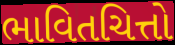
ભાવિતચિત્તો